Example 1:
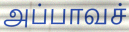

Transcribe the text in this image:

அப்பாவச்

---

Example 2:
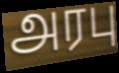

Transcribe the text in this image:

அரபு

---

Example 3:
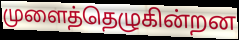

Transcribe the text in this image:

முளைத்தெழுகின்றன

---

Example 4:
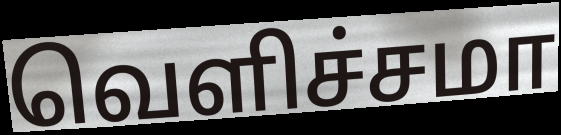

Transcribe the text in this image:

வெளிச்சமா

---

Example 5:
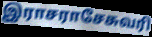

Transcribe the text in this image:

இராசராசேசுவரி